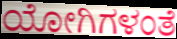
ಯೋಗಿಗಳಂತೆ